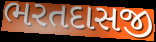
ભરતદાસજી